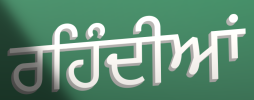
ਰਹਿੰਦੀਆਂ